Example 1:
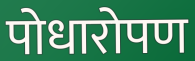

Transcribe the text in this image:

पोधारोपण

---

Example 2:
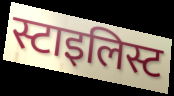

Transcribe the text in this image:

स्टाइलिस्ट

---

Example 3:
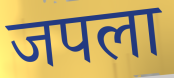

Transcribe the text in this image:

जपला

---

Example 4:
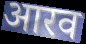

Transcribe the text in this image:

आरव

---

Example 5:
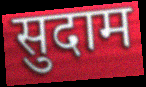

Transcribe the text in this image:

सुदाम